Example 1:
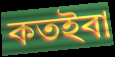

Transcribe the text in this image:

কতইবা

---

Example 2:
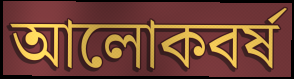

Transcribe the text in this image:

আলোকবর্ষ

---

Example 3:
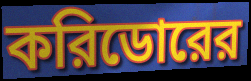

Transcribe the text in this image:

করিডোরের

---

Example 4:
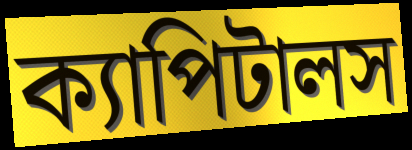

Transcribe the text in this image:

ক্যাপিটালস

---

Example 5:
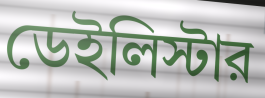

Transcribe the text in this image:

ডেইলিস্টার